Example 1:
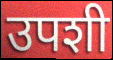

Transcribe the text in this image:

उपशी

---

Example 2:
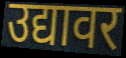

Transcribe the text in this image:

उद्यावर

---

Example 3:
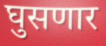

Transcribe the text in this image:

घुसणार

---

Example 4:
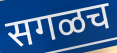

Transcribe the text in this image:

सगळच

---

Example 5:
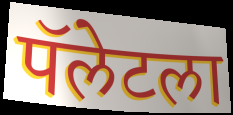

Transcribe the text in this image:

पॅलेटला